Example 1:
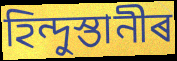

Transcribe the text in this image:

হিন্দুস্তানীৰ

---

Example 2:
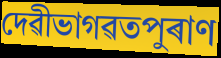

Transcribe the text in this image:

দেৱীভাগৱতপুৰাণ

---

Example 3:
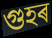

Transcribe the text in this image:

গুহৰ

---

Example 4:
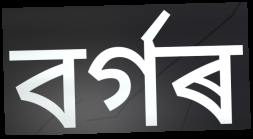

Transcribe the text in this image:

বৰ্গৰ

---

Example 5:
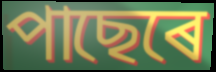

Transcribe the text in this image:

পাছেৰে